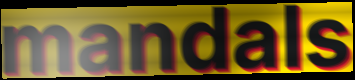
mandals